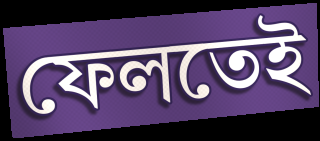
ফেলতেই